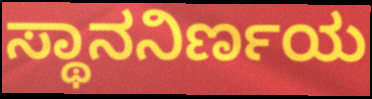
ಸ್ಥಾನನಿರ್ಣಯ